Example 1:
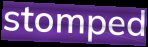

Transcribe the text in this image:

stomped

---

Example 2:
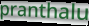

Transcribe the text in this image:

pranthalu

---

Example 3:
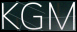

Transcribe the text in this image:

KGM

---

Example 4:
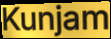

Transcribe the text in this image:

Kunjam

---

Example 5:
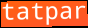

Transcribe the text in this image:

tatpar